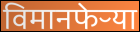
विमानफेऱ्या